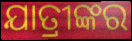
ଯାତ୍ରୀଙ୍କର